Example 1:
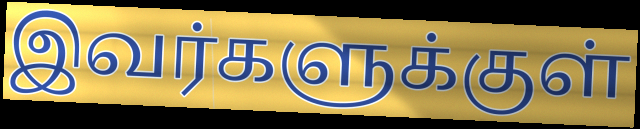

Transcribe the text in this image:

இவர்களுக்குள்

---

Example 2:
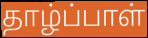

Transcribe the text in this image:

தாழ்ப்பாள்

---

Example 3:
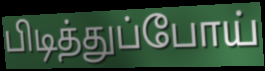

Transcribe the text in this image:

பிடித்துப்போய்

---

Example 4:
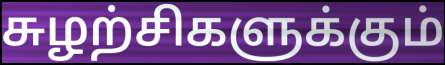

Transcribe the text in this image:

சுழற்சிகளுக்கும்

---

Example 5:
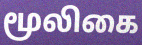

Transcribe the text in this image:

மூலிகை